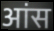
आंस